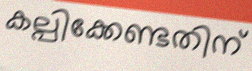
കല്പിക്കേണ്ടതിന്